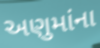
અણુમાંના